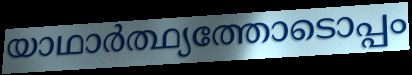
യാഥാർത്ഥ്യത്തോടൊപ്പം